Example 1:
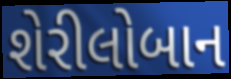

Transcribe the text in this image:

શેરીલોબાન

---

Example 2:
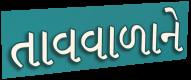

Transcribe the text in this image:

તાવવાળાને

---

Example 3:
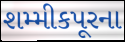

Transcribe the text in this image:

શમ્મીકપૂરના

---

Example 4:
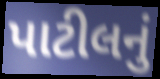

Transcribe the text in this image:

પાટીલનું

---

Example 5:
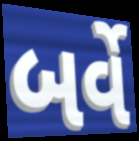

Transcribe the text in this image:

બર્વે